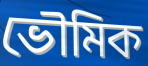
ভৌমিক